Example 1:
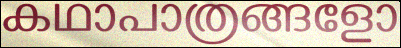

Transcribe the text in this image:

കഥാപാത്രങ്ങളോ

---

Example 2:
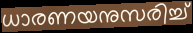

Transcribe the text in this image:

ധാരണയനുസരിച്ച്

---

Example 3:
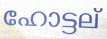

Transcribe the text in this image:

ഹോട്ടല്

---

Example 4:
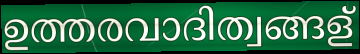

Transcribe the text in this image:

ഉത്തരവാദിത്വങ്ങള്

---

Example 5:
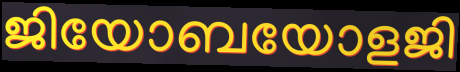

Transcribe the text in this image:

ജിയോബയോളജി